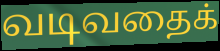
வடிவதைக்